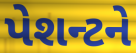
પેશન્ટને